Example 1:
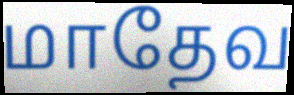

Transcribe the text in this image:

மாதேவ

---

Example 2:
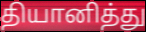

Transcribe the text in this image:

தியானித்து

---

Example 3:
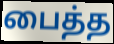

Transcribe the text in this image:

பைத்த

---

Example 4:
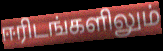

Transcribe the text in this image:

ஈரிடங்களிலும்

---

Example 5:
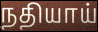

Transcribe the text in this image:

நதியாய்